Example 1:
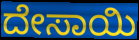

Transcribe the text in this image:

ದೇಸಾಯಿ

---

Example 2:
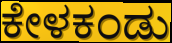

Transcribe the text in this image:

ಕೇಳಕಂಡು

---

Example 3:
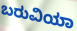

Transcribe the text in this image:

ಬರುವಿಯಾ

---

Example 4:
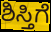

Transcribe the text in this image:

ಶಿಸ್ತಿಗೆ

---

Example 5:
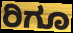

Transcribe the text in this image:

ರಿಗೂ